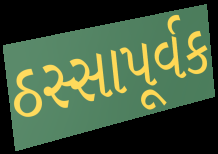
ઠસ્સાપૂર્વક